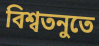
বিশ্বতনুতে